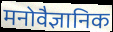
मनोवैज्ञानिक